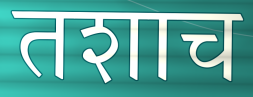
तशाच